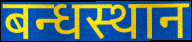
बन्धस्थान